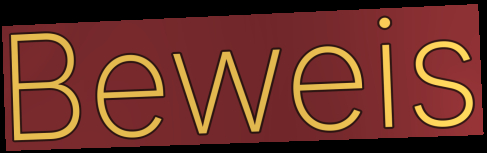
Beweis